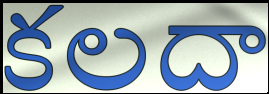
కలదా